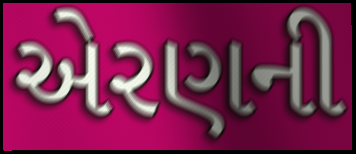
એરણની